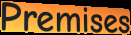
Premises